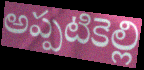
అప్పటికెల్లి